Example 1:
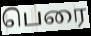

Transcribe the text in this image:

பெரை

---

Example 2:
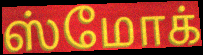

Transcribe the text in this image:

ஸ்மோக்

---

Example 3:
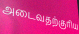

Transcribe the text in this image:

அடைவதற்குரிய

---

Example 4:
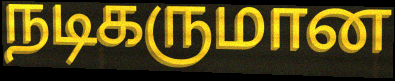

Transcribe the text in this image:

நடிகருமான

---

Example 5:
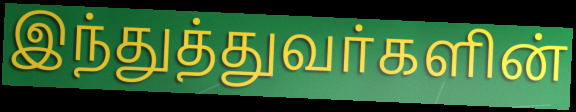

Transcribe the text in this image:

இந்துத்துவர்களின்